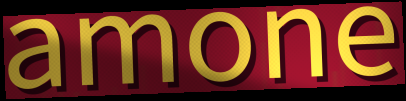
amone